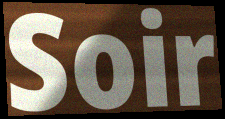
Soir